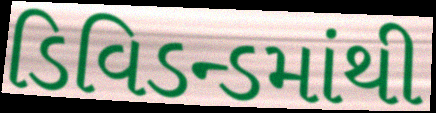
ડિવિડન્ડમાંથી